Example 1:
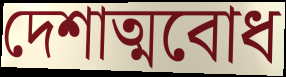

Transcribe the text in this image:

দেশাত্মবোধ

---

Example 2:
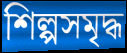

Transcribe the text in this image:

শিল্পসমৃদ্ধ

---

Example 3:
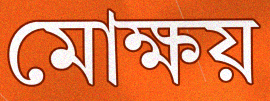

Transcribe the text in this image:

মোক্ষয়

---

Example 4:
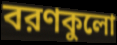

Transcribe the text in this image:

বরণকুলো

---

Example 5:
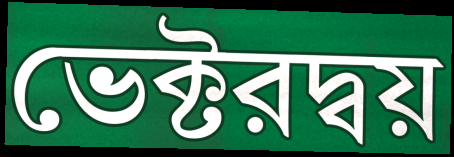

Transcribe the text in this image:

ভেক্টরদ্বয়